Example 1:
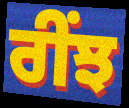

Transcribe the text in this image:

ਰੀਂਝ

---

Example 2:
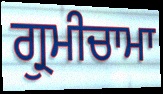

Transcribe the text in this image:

ਗ੍ਰੁਮੀਚਾਮਾ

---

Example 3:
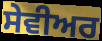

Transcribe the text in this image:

ਸੇਵੀਅਰ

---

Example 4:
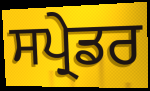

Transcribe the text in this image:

ਸਪ੍ਰੇਡਰ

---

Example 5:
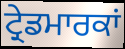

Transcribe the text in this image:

ਟ੍ਰੇਡਮਾਰਕਾਂ